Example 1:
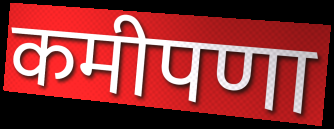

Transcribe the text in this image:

कमीपणा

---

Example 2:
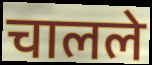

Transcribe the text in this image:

चालले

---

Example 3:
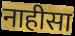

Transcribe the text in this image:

नाहीसा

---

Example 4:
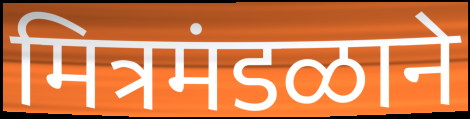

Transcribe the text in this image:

मित्रमंडळाने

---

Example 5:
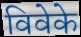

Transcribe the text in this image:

विवेके